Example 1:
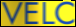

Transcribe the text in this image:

VELC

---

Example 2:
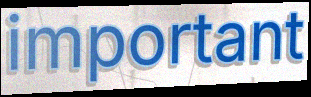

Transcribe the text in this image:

important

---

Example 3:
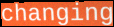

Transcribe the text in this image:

changing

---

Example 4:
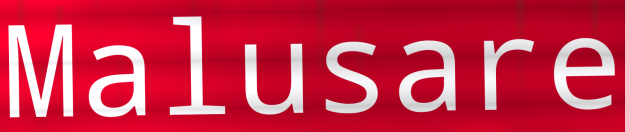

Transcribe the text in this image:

Malusare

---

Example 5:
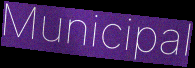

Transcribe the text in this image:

Municipal